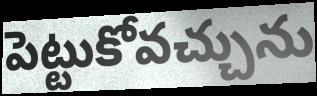
పెట్టుకోవచ్చును